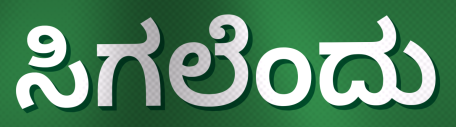
ಸಿಗಲೆಂದು